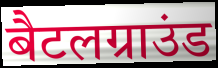
बैटलग्राउंड